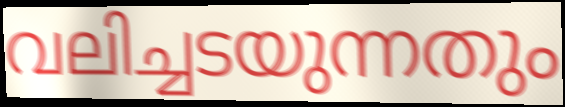
വലിച്ചടയുന്നതും